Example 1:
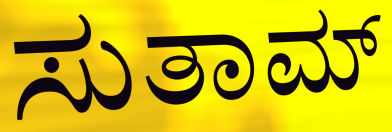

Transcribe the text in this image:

ಸುತಾಮ್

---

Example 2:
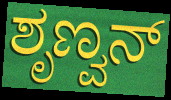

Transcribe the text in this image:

ಶೃಣ್ವನ್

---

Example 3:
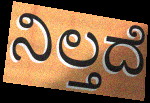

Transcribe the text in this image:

ನಿಲ್ತದೆ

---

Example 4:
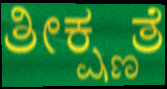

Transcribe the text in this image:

ತೀಕ್ಷ್ಣತೆ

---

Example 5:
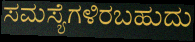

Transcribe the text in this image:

ಸಮಸ್ಯೆಗಳಿರಬಹುದು